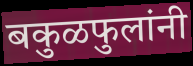
बकुळफुलांनी